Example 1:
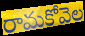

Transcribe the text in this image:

రామకోవెల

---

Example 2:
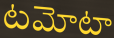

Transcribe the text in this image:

టమోటా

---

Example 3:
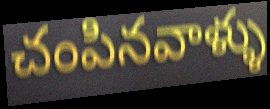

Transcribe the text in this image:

చంపినవాళ్ళు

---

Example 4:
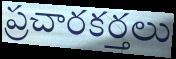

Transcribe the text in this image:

ప్రచారకర్తలు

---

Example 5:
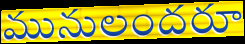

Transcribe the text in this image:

మునులందరూ